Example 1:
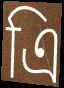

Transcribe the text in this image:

এি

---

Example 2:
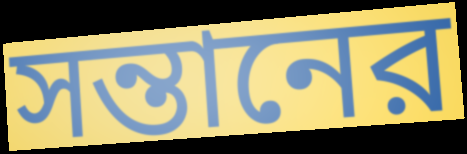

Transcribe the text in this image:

সন্তানের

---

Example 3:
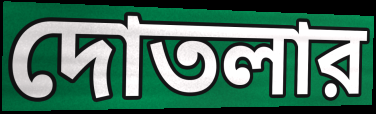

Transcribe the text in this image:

দোতলার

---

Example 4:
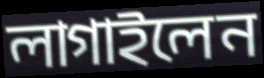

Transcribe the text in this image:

লাগাইলেন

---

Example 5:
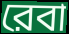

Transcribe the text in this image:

রেবা